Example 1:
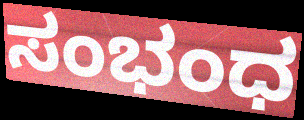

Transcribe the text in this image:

ಸಂಭಂಧ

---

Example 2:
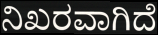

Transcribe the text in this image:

ನಿಖರವಾಗಿದೆ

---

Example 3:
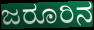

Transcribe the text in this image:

ಜರೂರಿನ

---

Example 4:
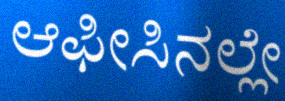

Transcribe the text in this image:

ಆಫೀಸಿನಲ್ಲೇ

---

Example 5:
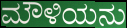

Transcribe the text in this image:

ಮೌಳಿಯನು